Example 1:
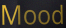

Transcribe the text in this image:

Mood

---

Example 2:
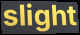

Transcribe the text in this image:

slight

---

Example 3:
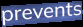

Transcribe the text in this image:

prevents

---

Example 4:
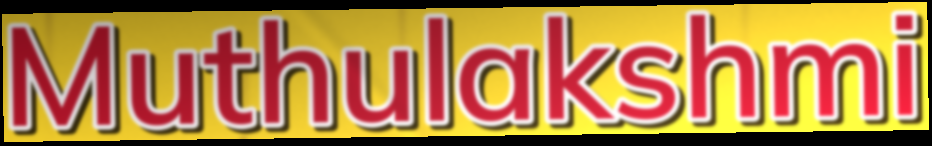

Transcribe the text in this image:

Muthulakshmi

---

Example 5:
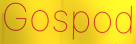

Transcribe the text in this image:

Gospod